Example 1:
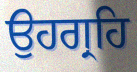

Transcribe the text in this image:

ਉਹਗ੍ਰਹਿ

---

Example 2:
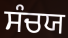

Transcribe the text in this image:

ਸੰਚਯ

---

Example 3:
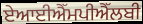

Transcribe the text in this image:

ਏਆਈਐੱਮਪੀਐੱਲਬੀ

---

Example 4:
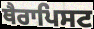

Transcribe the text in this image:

ਥੈਰਾਪਿਸਟ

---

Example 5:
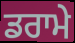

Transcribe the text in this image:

ਡਰਾਮੇ